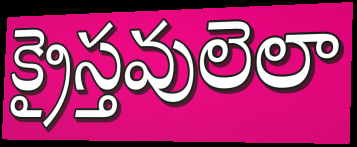
క్రైస్తవులెలా